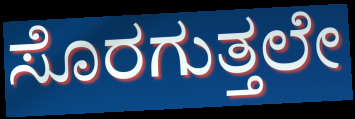
ಸೊರಗುತ್ತಲೇ